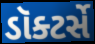
ડૉક્ટર્સે